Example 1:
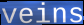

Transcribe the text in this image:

veins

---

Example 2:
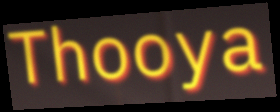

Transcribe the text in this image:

Thooya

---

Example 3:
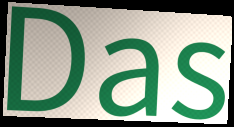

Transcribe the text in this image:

Das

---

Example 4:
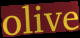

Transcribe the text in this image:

olive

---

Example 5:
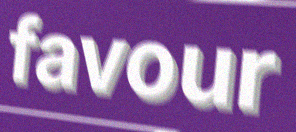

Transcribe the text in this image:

favour